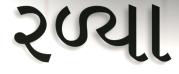
રળ્યા